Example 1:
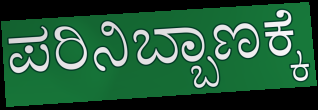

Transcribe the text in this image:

ಪರಿನಿಬ್ಬಾಣಕ್ಕೆ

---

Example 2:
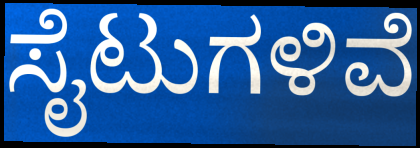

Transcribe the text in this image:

ಸೈಟುಗಳಿವೆ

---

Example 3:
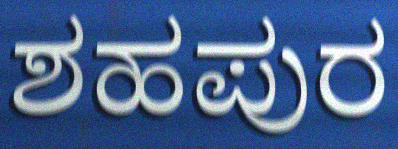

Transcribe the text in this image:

ಶಹಪುರ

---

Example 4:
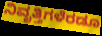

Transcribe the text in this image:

ನಿವೃತ್ತಿಗಳೆರಡೂ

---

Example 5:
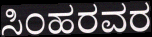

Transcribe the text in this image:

ಸಿಂಹರವರ